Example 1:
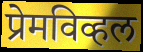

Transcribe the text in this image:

प्रेमविव्हल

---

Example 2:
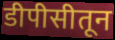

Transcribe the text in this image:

डीपीसीतून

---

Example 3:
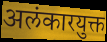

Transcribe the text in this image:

अलंकारयुक्त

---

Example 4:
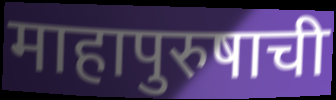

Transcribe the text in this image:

माहापुरुषाची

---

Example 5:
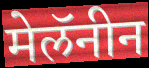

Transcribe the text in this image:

मेलॅनीन